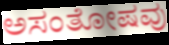
ಅಸಂತೋಷವು